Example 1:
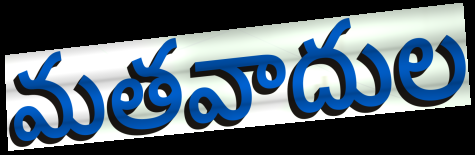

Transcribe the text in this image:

మతవాదుల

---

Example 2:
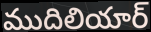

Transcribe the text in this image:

ముదిలియార్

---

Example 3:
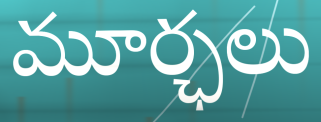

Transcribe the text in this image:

మూర్ఛలు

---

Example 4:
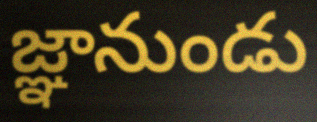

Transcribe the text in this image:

జ్ఞానుండు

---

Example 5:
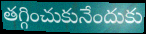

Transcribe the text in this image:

తగ్గించుకునేందుకు